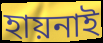
হায়নাই